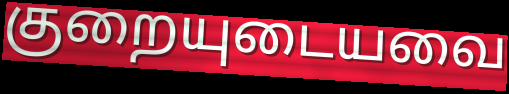
குறையுடையவை